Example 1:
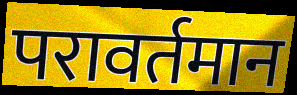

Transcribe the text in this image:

परावर्तमान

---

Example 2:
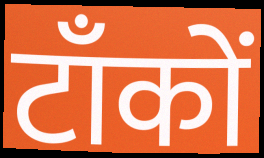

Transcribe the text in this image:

टाँकों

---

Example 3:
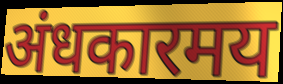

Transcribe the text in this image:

अंधकारमय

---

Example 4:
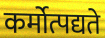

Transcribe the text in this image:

कर्मोत्पद्यते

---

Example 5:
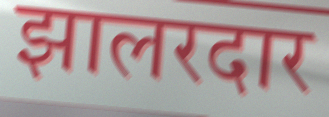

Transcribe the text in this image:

झालरदार